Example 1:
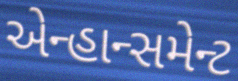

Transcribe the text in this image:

એન્હાન્સમેન્ટ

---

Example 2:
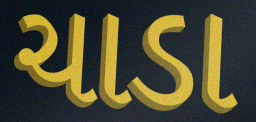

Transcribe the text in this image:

ચાડા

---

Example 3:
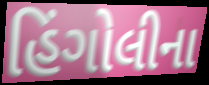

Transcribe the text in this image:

હિંગોલીના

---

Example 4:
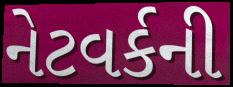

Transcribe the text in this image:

નેટવર્કની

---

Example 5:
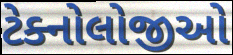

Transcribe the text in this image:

ટેક્નોલોજીઓ